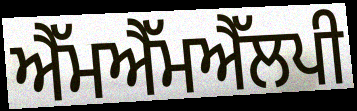
ਐੱਮਐੱਮਐੱਲਪੀ